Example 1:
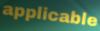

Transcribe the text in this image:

applicable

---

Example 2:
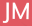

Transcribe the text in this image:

JM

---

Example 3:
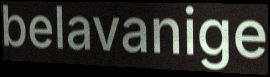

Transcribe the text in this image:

belavanige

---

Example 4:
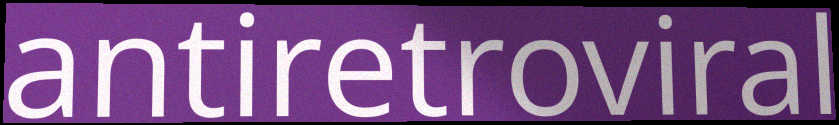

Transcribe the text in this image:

antiretroviral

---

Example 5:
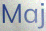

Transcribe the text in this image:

Maj